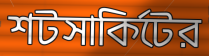
শটসার্কিটের